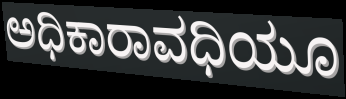
ಅಧಿಕಾರಾವಧಿಯೂ